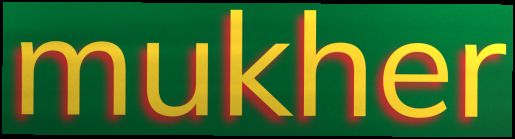
mukher